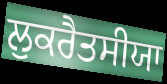
ਲੁਕਰੈਤਸੀਯਾ